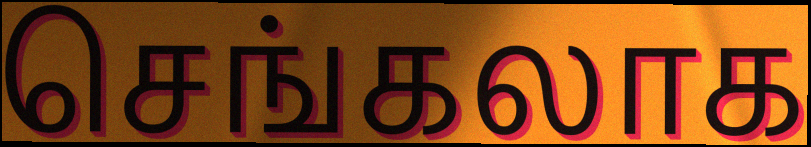
செங்கலாக